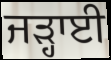
ਜੜ੍ਹਾਈ